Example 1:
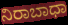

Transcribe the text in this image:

ನಿರಾಬಾಧಾ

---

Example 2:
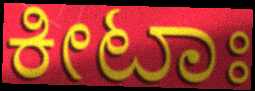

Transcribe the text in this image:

ಕೀಟಾಃ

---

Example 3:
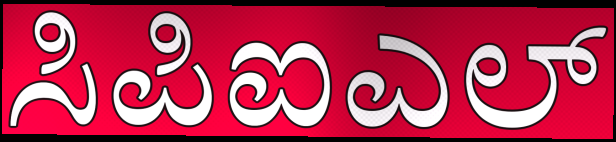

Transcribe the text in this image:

ಸಿಪಿಐಎಲ್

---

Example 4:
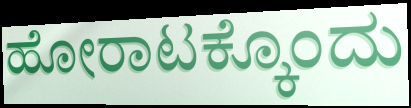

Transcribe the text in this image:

ಹೋರಾಟಕ್ಕೊಂದು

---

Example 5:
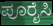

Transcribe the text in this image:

ಪೂರೈಸಿ